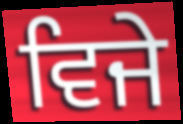
ਵਿਜੇ